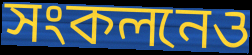
সংকলনেও